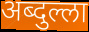
अब्दुल्ला